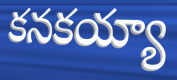
కనకయ్యా